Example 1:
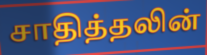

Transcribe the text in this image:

சாதித்தலின்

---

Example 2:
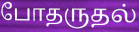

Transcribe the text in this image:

போதருதல்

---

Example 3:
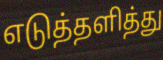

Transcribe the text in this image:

எடுத்தளித்து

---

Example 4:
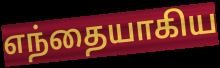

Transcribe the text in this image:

எந்தையாகிய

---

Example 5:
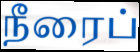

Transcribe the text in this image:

நீரைப்